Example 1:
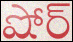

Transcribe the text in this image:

షోర్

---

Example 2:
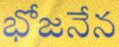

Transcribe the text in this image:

భోజనేన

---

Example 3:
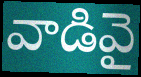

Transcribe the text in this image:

వాడివై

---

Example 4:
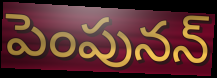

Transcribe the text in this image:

పెంపునన్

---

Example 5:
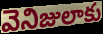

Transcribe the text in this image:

వెనిజులాకు